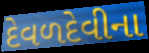
દેવળદેવીના